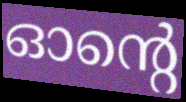
ഓന്റെ